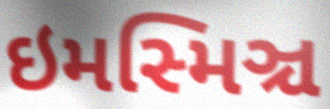
ઇમસ્મિઞ્ચ